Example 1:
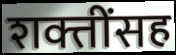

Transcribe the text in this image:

शक्तींसह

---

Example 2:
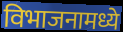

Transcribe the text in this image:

विभाजनामध्ये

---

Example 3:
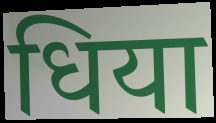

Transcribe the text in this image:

धिया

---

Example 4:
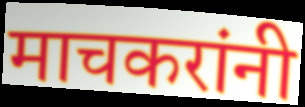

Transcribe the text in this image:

माचकरांनी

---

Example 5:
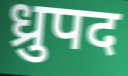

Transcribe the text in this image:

ध्रुपद